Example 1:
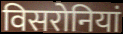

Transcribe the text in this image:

विसरोनियां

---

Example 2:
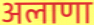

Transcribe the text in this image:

अलाणा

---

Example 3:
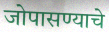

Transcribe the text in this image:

जोपासण्याचे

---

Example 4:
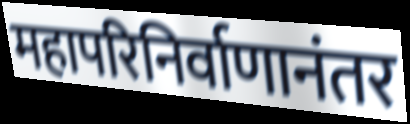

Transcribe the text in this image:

महापरिनिर्वाणानंतर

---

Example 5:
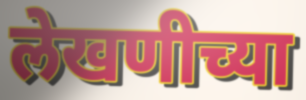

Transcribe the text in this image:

लेखणीच्या